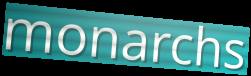
monarchs